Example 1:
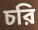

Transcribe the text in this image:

চরি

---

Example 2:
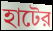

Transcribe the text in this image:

হাটের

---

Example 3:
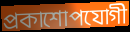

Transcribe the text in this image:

প্রকাশোপযোগী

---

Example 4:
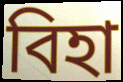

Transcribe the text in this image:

বিহা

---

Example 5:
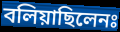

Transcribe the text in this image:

বলিয়াছিলেনঃ